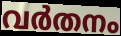
വർതനം